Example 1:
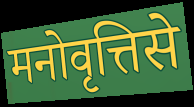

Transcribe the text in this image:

मनोवृत्तिसे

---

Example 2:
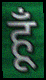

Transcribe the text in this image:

हूँं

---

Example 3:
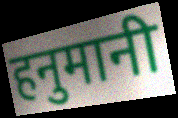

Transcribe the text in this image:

हनुमानी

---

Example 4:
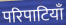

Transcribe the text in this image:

परिपाटियाँ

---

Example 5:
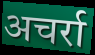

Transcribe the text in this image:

अचर्रा